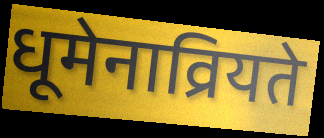
धूमेनाव्रियते